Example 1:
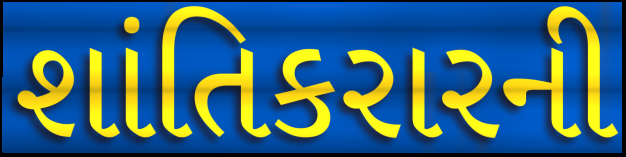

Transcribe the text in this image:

શાંતિકરારની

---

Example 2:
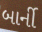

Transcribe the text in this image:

બાર્ની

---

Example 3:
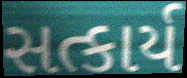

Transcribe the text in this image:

સત્કાર્ય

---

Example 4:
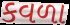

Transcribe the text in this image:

કવળા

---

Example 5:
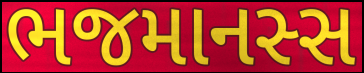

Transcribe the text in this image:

ભજમાનસ્સ